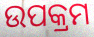
ଉପକ୍ରମ